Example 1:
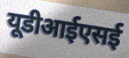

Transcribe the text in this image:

यूडीआईएसई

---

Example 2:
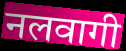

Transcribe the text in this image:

नलवागी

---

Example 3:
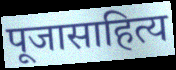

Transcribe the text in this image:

पूजासाहित्य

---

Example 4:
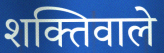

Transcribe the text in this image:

शक्तिवाले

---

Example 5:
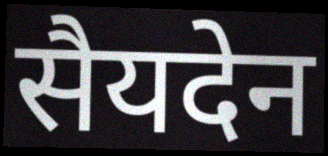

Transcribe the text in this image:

सैयदेन